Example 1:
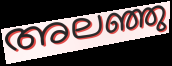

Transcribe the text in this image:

അലഞ്ഞു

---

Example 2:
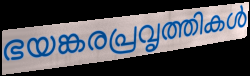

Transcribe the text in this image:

ഭയങ്കരപ്രവൃത്തികൾ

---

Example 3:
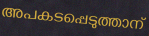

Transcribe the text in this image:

അപകടപ്പെടുത്താന്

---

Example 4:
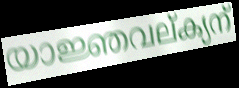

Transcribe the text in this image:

യാജ്ഞവല്ക്യന്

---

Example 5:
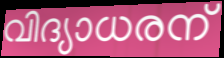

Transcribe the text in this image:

വിദ്യാധരന്